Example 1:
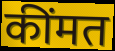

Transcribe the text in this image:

कींमत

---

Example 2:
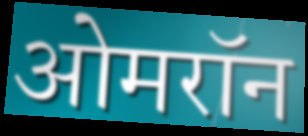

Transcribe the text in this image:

ओमरॉन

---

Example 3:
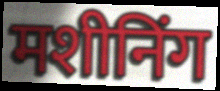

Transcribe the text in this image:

मशीनिंग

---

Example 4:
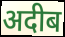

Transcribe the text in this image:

अदीब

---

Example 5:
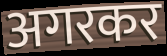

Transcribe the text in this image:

अगरकर